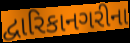
દ્વારિકાનગરીના